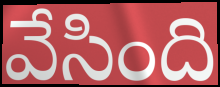
వేసింది